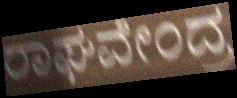
ರಾಘವೇಂದ್ರ